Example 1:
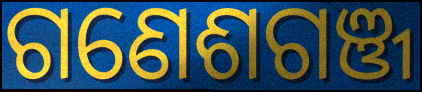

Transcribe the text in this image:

ଗଣେଶଗଞ୍ଜ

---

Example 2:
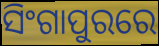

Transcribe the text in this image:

ସିଂଗାପୁରରେ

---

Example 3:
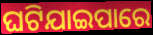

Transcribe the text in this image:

ଘଟିଯାଇପାରେ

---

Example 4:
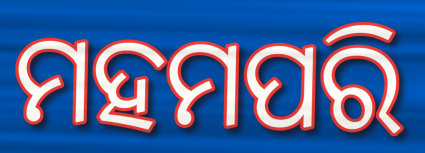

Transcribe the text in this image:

ମହମପରି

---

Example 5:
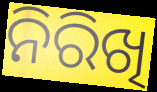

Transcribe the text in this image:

ନିରିଖି